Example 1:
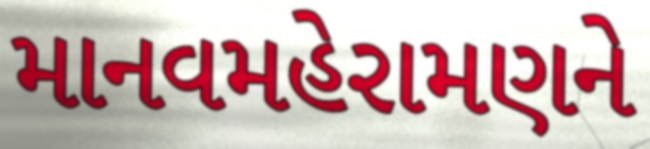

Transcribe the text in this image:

માનવમહેરામણને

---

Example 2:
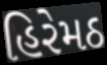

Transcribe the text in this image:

હિરેમઠ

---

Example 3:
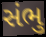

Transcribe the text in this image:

સંભુ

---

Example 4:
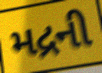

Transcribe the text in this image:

મદ્રની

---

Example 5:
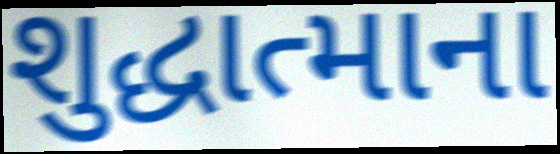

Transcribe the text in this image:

શુદ્ધાત્માના